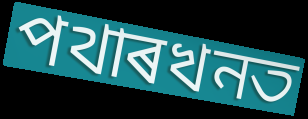
পথাৰখনত